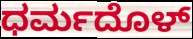
ಧರ್ಮದೊಳ್